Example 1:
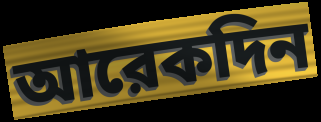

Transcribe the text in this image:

আরেকদিন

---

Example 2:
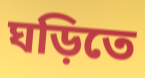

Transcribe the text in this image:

ঘড়িতে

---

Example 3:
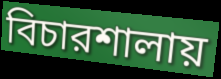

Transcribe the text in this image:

বিচারশালায়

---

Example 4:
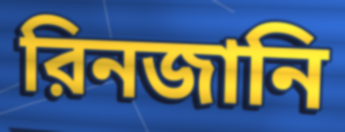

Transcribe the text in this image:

রিনজানি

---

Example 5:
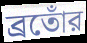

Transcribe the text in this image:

ব্রতোঁর